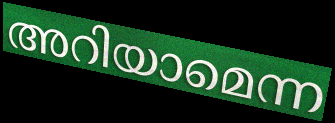
അറിയാമെന്ന